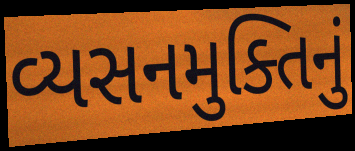
વ્યસનમુક્તિનું